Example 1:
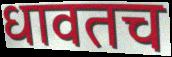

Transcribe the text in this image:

धावतच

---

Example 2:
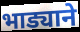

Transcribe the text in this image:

भाड्याने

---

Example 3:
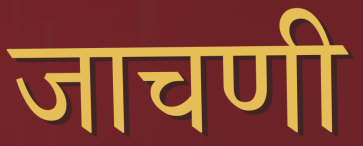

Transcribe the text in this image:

जाचणी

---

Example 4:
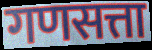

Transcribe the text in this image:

गणसत्ता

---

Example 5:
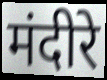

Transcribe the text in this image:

मंदीरे